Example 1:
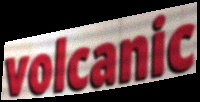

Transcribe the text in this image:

volcanic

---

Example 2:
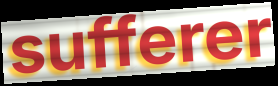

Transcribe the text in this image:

sufferer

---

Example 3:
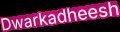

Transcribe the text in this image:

Dwarkadheesh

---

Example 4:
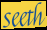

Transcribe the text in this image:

seeth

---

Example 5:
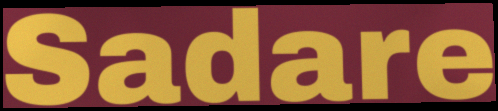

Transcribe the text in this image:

Sadare